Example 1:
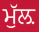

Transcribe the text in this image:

ਮੁੱਲ਼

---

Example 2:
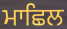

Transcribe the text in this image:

ਮਾਛਿਲ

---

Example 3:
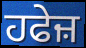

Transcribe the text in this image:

ਹਫੇਜ਼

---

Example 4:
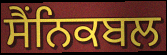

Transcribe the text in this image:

ਸੈੰਨਿਕਬਲ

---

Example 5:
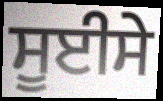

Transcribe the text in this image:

ਸੂਈਸੇ